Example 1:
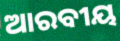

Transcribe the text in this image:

ଆରବୀୟ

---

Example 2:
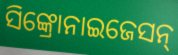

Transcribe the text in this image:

ସିଙ୍କ୍ରୋନାଇଜେସନ୍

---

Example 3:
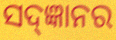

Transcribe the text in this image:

ସଦ୍‌ଜ୍ଞାନର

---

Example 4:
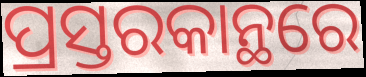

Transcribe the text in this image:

ପ୍ରସ୍ତରକାନ୍ଥରେ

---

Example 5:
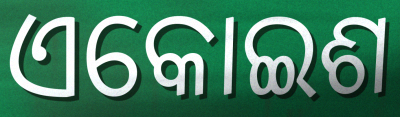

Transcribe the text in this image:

ଏକୋଇଶ